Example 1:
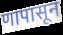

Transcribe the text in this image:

णापासून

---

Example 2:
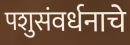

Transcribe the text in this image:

पशुसंवर्धनाचे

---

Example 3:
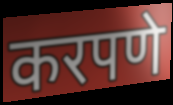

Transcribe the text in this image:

करपणे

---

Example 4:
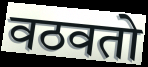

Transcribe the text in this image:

वठवतो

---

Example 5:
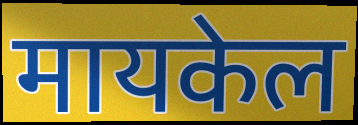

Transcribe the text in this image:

मायकेल